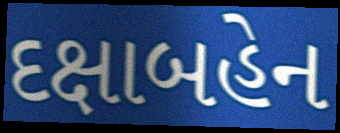
દક્ષાબહેન